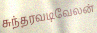
சுந்தரவடிவேலன்